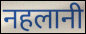
नहलानी